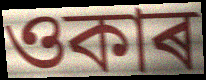
ওকাৰ